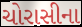
ચોરાસીના